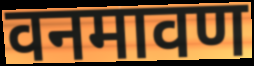
वनमावण